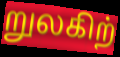
றுலகிற்